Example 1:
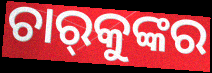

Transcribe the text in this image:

ଚାର୍‌କୁଙ୍କର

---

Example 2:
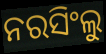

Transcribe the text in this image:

ନରସିଂଲୁ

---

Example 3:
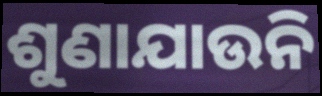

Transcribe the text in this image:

ଶୁଣାଯାଉନି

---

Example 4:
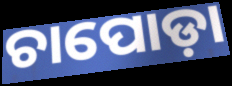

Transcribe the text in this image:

ଚାପୋଡ଼ା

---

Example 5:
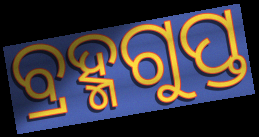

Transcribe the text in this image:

ବ୍ରହ୍ମଗୁପ୍ତ